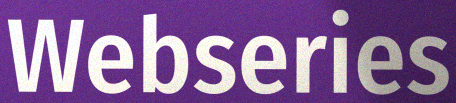
Webseries